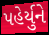
પહેર્યુને